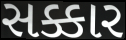
સક્કાર